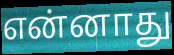
என்னாது